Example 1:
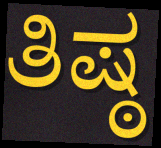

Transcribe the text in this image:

ತಿಷ್ಠ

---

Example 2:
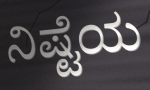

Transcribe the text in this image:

ನಿಷ್ಟೆಯ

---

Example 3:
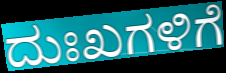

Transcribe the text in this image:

ದುಃಖಗಳಿಗೆ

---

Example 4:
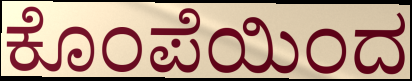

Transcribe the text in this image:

ಕೊಂಪೆಯಿಂದ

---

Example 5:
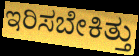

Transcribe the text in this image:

ಇರಿಸಬೇಕಿತ್ತು